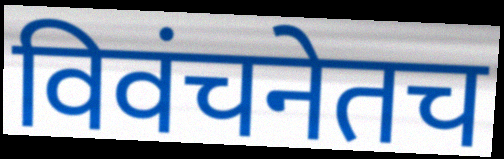
विवंचनेतच